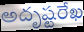
అదృష్టరేఖ